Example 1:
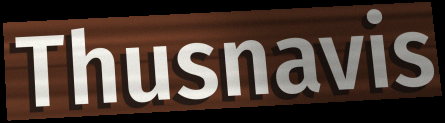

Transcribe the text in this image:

Thusnavis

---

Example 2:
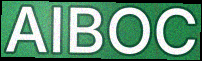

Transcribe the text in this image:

AIBOC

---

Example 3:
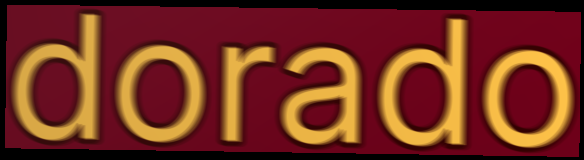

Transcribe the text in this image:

dorado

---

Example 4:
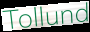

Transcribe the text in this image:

Tollund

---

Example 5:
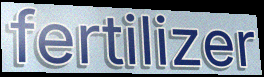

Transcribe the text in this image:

fertilizer